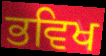
ਭਵਿਖ